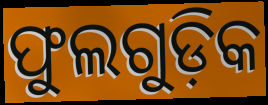
ଫୁଲଗୁଡ଼ିକ